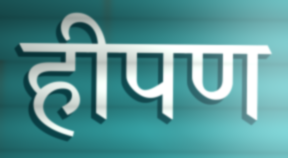
हीपण